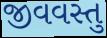
જીવવસ્તુ